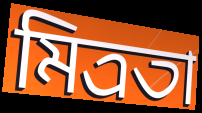
মিত্ৰতা